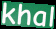
khal